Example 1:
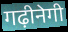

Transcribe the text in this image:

गढ़ीनेगी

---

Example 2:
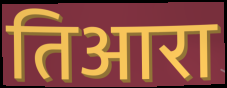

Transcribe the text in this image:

तिआरा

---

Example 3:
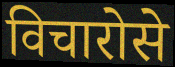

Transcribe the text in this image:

विचारोसे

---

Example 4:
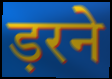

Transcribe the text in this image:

ड़रने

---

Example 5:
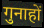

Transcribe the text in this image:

गुनाहों